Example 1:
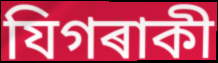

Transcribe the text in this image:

যিগৰাকী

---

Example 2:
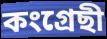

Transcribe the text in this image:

কংগ্ৰেছী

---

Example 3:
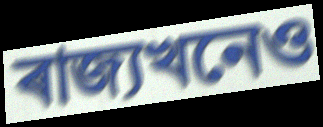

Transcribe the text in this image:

ৰাজ্যখনেও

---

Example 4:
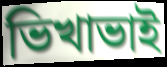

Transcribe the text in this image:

ভিখাভাই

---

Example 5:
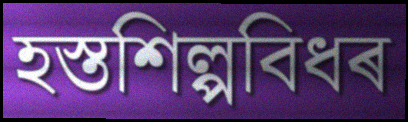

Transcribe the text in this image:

হস্তশিল্পবিধৰ